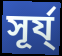
সূৰ্য্